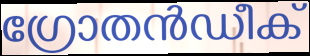
ഗ്രോതൻഡീക്